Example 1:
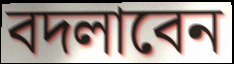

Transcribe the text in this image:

বদলাবেন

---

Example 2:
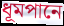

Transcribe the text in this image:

ধূমপানে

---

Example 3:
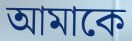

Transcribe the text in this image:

আমাকে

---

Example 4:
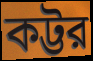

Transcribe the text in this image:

কট্টর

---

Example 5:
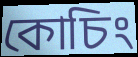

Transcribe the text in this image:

কোচিং